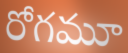
రోగమూ